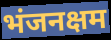
भंजनक्षम